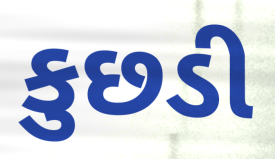
કુછડી